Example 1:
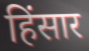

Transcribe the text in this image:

हिंसार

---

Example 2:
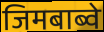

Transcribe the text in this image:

जिमबाब्वे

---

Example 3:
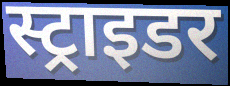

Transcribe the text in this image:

स्ट्राइडर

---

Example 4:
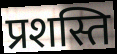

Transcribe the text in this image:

प्रशस्ति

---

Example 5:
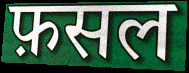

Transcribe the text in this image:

फ़सल